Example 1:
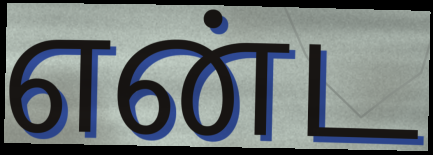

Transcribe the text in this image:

என்ட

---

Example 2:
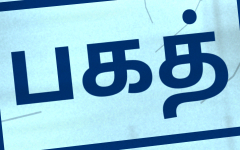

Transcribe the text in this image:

பகத்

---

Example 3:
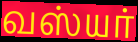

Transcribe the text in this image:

வஸ்யர்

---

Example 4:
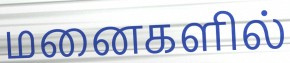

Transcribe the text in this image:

மனைகளில்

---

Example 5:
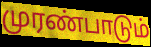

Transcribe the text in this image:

முரண்பாடும்